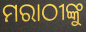
ମରାଠୀଙ୍କୁ